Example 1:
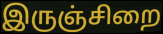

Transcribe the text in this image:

இருஞ்சிறை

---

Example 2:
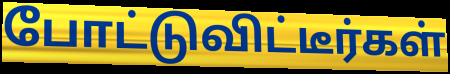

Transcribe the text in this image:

போட்டுவிட்டீர்கள்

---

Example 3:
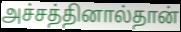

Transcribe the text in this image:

அச்சத்தினால்தான்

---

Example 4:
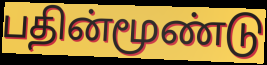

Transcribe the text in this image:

பதின்மூண்டு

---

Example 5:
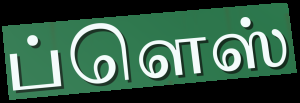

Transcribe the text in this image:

ப்ளெஸ்